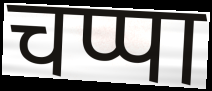
चप्पा